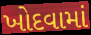
ખોદવામાં